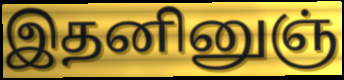
இதனினுஞ்